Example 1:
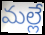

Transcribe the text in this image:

మల్లే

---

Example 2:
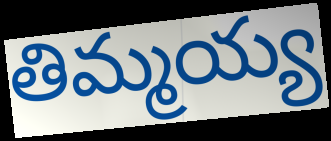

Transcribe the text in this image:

తిమ్మయ్య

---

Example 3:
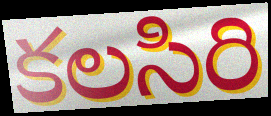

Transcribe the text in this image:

కలసిరి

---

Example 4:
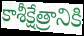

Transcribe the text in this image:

కాశీక్షేత్రానికి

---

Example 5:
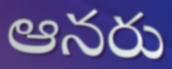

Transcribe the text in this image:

ఆనరు